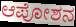
ಆಪೋಶನ